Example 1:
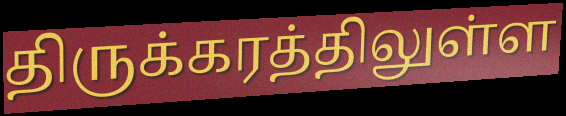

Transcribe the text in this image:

திருக்கரத்திலுள்ள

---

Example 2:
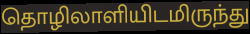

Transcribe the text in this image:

தொழிலாளியிடமிருந்து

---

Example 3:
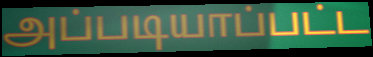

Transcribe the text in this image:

அப்படியாப்பட்ட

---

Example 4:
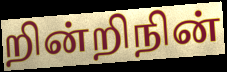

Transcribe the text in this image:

றின்றிநின்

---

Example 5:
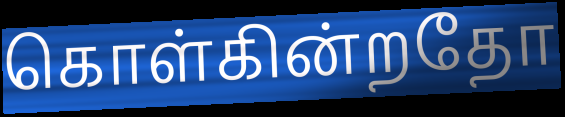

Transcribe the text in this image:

கொள்கின்றதோ